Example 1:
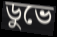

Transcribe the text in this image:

ডুভে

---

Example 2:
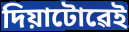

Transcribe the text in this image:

দিয়াটোৱেই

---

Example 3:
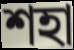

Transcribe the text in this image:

শহা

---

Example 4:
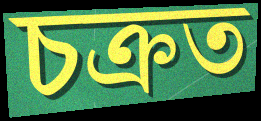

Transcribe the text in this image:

চক্ৰত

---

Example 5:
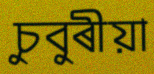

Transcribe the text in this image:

চুবুৰীয়া